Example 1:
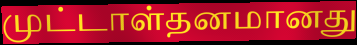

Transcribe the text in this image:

முட்டாள்தனமானது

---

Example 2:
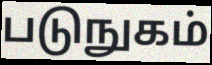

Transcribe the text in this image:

படுநுகம்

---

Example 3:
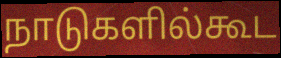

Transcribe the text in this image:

நாடுகளில்கூட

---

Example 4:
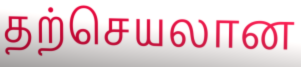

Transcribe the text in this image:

தற்செயலான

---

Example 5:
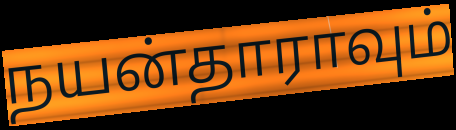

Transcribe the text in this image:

நயன்தாராவும்